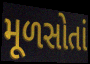
મૂળસોતાં